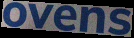
ovens